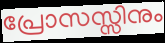
പ്രോസസ്സിനും